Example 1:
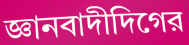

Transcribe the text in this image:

জ্ঞানবাদীদিগের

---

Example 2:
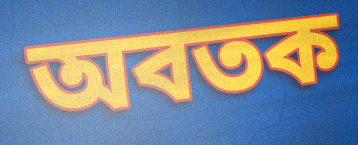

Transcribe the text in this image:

অবতক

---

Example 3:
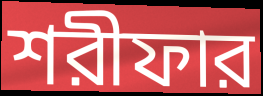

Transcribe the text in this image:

শরীফার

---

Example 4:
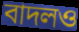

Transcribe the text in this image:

বাদলও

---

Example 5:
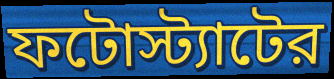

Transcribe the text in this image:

ফটোস্ট্যাটের